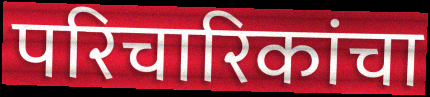
परिचारिकांचा